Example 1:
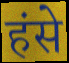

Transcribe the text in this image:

हंसे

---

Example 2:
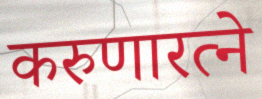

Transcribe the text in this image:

करुणारत्ने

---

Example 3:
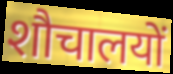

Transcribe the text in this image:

शौचालयों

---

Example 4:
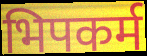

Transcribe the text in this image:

भिपकर्म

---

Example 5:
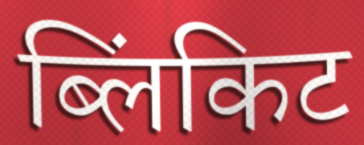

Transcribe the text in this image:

ब्लिंकिट